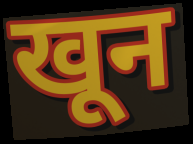
खून